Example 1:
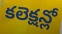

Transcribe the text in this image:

కలెక్షన్లో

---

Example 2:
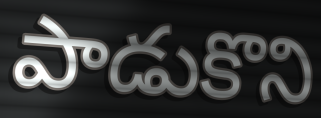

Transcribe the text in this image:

పాడుకొని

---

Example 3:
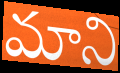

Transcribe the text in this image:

మాని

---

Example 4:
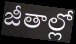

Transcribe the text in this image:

జీతాల్లో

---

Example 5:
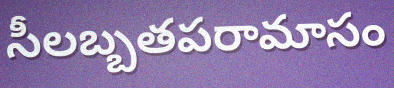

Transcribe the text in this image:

సీలబ్బతపరామాసం